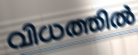
വിധത്തിൽ